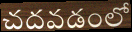
చదవడంలో